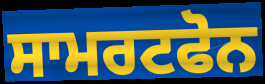
ਸਾਮਰਟਫੋਨ